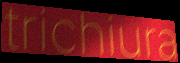
trichiura